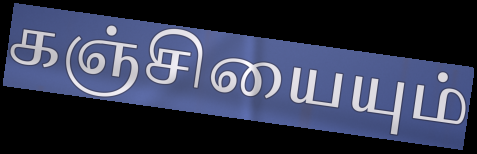
கஞ்சியையும்